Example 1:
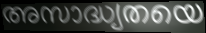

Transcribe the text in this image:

അസാദ്ധ്യതയെ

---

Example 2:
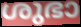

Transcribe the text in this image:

ശുഭാ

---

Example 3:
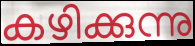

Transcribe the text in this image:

കഴിക്കുന്നു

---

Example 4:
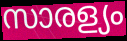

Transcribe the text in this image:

സാരള്യം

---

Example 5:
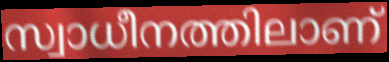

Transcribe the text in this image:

സ്വാധീനത്തിലാണ്